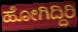
ಹೋಗಿದ್ದಿರಿ